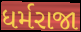
ધર્મરાજા